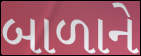
બાળાને